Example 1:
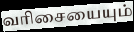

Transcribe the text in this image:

வரிசையையும்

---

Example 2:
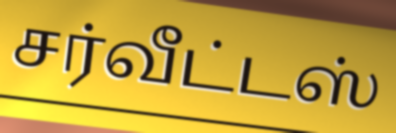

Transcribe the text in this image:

சர்வீட்டஸ்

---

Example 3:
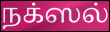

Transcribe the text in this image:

நக்ஸல்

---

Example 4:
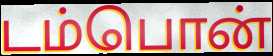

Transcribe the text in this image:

டம்பொன்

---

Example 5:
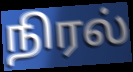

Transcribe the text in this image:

நிரல்